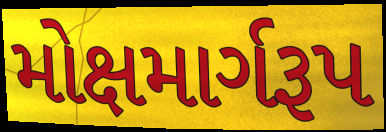
મોક્ષમાર્ગરૂપ